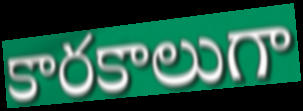
కారకాలుగా